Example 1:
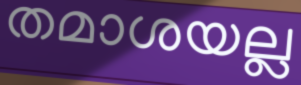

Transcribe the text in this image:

തമാശയല്ല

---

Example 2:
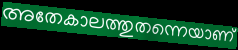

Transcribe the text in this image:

അതേകാലത്തുതന്നെയാണ്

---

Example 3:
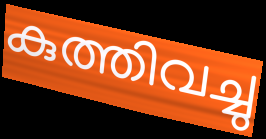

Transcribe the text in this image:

കുത്തിവച്ചു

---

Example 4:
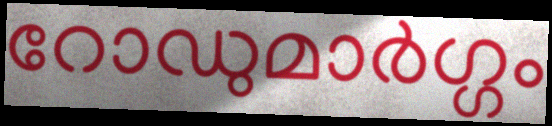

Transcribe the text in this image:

റോഡുമാർഗ്ഗം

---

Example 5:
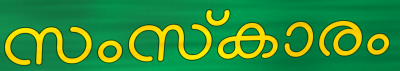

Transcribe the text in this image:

സംസ്‌കാരം